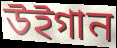
উইগান